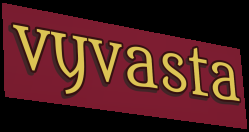
vyvasta